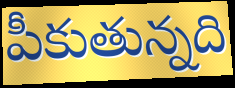
పీకుతున్నది